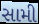
સામી